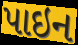
પાઇન